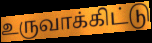
உருவாக்கிட்டு